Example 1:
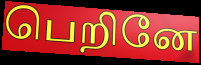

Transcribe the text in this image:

பெறினே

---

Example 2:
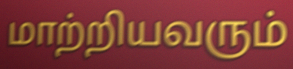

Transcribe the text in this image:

மாற்றியவரும்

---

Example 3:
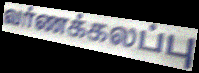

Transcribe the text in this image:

வர்ணக்கலப்பு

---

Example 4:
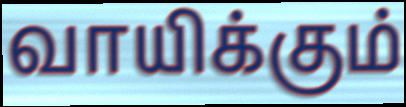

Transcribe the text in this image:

வாயிக்கும்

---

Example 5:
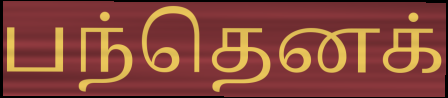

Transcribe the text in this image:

பந்தெனக்